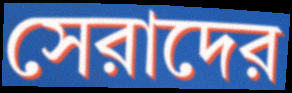
সেরাদের